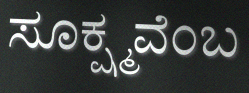
ಸೂಕ್ಷ್ಮವೆಂಬ